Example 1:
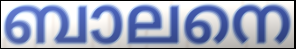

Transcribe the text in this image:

ബാലനെ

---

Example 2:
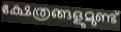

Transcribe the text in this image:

ക്ഷേത്രങ്ങളുമുണ്ട്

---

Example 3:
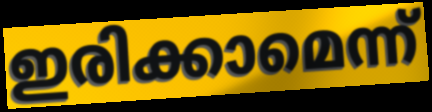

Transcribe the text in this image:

ഇരിക്കാമെന്ന്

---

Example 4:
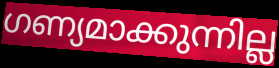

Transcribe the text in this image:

ഗണ്യമാക്കുന്നില്ല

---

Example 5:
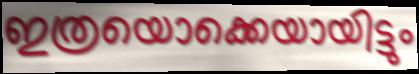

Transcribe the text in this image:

ഇത്രയൊക്കെയായിട്ടും